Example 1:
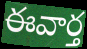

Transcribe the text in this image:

ఈవార్త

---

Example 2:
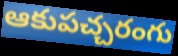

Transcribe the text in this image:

ఆకుపచ్చరంగు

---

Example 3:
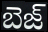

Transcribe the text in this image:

బెజ్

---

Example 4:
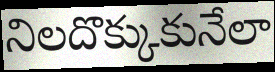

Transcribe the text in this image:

నిలదొక్కుకునేలా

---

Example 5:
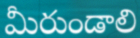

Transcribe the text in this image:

మీరుండాలి